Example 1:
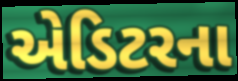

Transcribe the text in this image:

એડિટરના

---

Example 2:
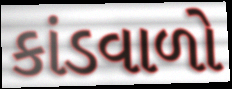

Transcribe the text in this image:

કાંડવાળો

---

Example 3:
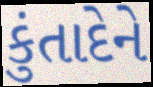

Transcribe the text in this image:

કુંતાદેને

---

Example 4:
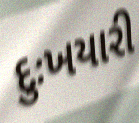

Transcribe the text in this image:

દુઃખયારી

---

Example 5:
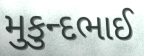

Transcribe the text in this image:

મુકુન્દભાઈ